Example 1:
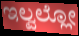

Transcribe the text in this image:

ಇಲ್ವಲ್ಲೋ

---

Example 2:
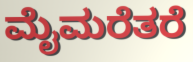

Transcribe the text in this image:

ಮೈಮರೆತರೆ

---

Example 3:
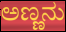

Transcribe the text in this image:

ಅಣ್ಣನು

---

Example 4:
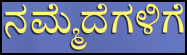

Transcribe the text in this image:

ನಮ್ಮೆದೆಗಳಿಗೆ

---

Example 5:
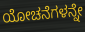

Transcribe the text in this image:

ಯೋಚನೆಗಳನ್ನೇ